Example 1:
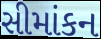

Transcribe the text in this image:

સીમાંકન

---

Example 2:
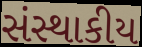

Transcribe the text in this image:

સંસ્થાકીય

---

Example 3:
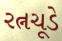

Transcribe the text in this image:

રત્નચૂડે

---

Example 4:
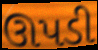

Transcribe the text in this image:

ઊપડી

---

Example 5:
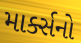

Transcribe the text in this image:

માર્ક્સનો